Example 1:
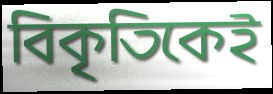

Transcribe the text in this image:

বিকৃতিকেই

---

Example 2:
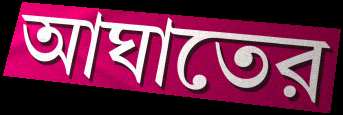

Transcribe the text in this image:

আঘাতের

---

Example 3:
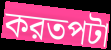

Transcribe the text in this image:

করতপটা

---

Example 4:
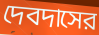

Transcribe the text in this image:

দেবদাসের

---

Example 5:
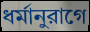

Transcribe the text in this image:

ধর্মানুরাগে